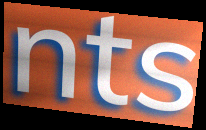
nts